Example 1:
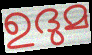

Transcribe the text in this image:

ഉദുമ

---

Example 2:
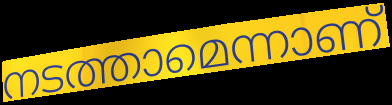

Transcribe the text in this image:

നടത്താമെന്നാണ്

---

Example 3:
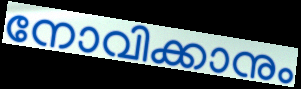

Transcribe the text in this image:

നോവിക്കാനും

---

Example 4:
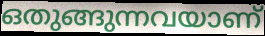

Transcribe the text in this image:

ഒതുങ്ങുന്നവയാണ്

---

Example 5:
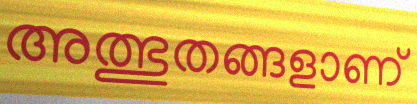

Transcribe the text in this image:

അത്ഭുതങ്ങളാണ്